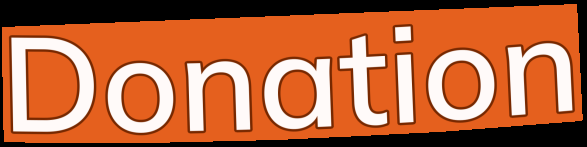
Donation